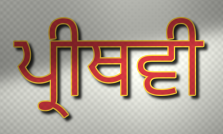
ਪ੍ਰੀਥਵੀ